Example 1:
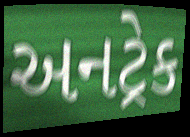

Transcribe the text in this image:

અનટ્રેક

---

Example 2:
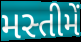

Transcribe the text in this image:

મસ્તીમેં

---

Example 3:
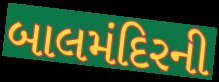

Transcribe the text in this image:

બાલમંદિરની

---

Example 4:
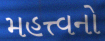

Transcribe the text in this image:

મહત્ત્વનો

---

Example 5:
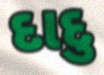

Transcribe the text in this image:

દાદુ